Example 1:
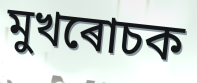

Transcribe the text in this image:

মুখৰোচক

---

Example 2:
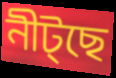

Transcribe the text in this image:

নীট্‌ছে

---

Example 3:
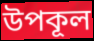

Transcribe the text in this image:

উপকূল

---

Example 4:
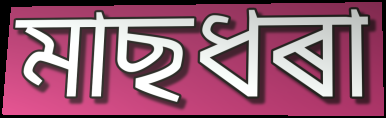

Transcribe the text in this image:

মাছধৰা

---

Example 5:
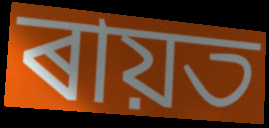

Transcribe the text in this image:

ৰায়ত